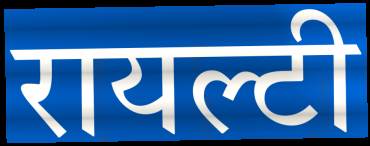
रायल्टी